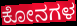
ಕೋನಗಳ